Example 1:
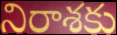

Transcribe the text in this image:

నిరాశకు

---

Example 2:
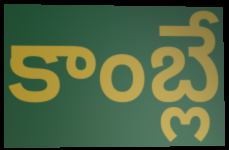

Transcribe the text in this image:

కాంబ్లే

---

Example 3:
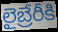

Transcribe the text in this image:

లైబ్రేరీకి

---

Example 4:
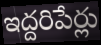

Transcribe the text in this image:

ఇద్దరిపేర్లు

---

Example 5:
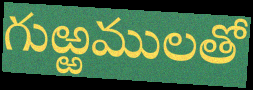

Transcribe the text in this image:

గుఱ్ఱములతో